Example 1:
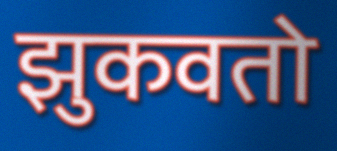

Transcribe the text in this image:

झुकवतो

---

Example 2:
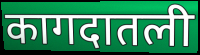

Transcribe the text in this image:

कागदातली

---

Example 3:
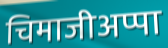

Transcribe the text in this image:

चिमाजीअप्पा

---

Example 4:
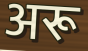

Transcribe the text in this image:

अरू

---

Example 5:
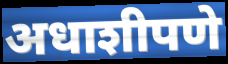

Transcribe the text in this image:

अधाशीपणे